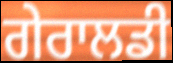
ਗੇਰਾਲਡੀ